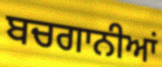
ਬਚਗਾਨੀਆਂ